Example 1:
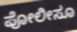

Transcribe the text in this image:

ಪೋಲೀಸೂ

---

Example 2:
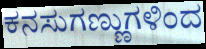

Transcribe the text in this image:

ಕನಸುಗಣ್ಣುಗಳಿಂದ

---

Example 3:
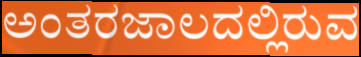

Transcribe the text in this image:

ಅಂತರಜಾಲದಲ್ಲಿರುವ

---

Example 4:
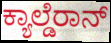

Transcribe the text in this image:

ಕ್ಯಾಲ್ಡೆರಾನ್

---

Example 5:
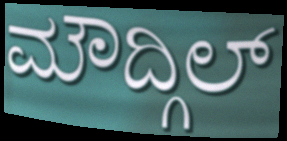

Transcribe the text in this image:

ಮೌದ್ಗಿಲ್